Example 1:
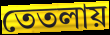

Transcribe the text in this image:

তেতলায়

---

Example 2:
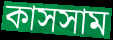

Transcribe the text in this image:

কাসসাম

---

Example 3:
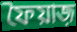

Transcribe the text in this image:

ফৈয়াজ়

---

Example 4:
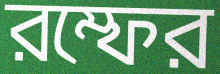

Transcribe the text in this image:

রম্ফের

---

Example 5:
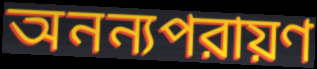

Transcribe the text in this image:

অনন্যপরায়ণ